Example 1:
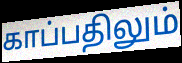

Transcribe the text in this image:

காப்பதிலும்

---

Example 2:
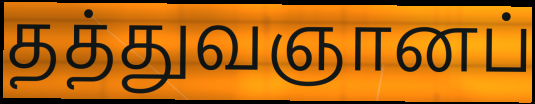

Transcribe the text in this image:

தத்துவஞானப்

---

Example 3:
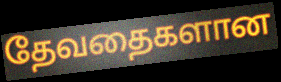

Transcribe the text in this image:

தேவதைகளான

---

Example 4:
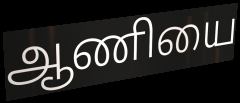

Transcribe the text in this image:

ஆணியை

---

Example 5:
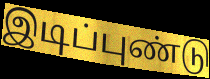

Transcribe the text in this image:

இடிப்புண்டு